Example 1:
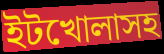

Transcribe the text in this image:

ইটখোলাসহ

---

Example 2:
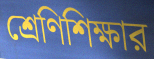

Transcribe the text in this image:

শ্রেণিশিক্ষার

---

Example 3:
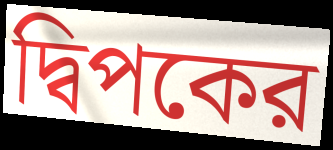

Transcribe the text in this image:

দ্বিপকের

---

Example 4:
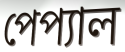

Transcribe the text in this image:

পেপ্যাল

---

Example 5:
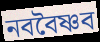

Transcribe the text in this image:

নববৈষ্ণব